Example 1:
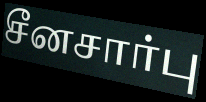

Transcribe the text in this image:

சீனசார்பு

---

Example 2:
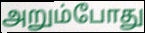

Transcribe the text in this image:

அறும்போது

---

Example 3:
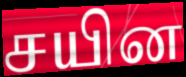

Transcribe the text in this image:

சயின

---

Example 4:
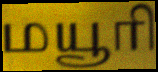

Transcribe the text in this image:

மயூரி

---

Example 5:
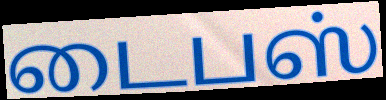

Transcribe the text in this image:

டைபஸ்